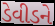
ડેવીડને